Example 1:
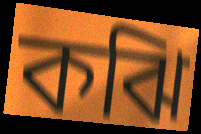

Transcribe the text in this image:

কঝি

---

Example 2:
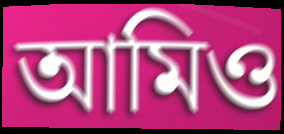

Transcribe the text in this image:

আমিও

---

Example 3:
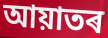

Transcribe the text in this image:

আয়াতৰ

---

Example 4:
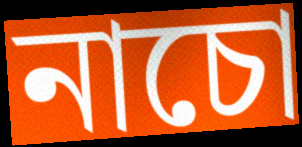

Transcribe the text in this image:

নাচো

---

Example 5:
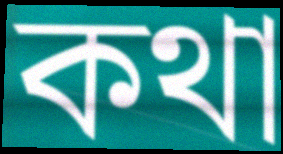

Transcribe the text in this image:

কথা